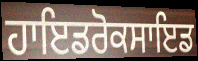
ਹਾਇਡਰੋਕਸਾਇਡ